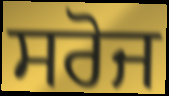
ਸਰੋਜ